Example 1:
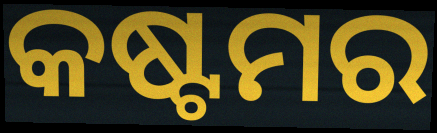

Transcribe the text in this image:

କଷ୍ଟମର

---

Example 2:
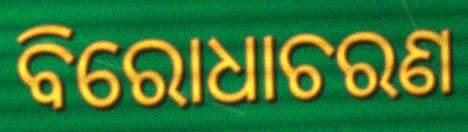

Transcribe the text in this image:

ବିରୋଧାଚରଣ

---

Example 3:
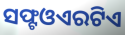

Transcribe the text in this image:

ସଫ୍ଟଓଏରଟିଏ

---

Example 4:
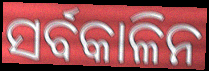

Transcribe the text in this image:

ସର୍ବକାଳିନ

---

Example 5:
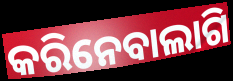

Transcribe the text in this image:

କରିନେବାଲାଗି